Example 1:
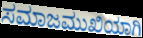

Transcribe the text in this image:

ಸಮಾಜಮುಖಿಯಾಗಿ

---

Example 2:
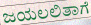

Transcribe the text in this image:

ಜಯಲಲಿತಾಗೆ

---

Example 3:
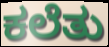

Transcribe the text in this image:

ಕಲೆತು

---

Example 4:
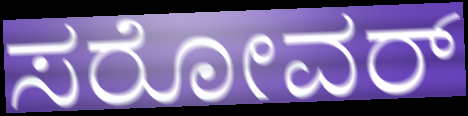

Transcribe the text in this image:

ಸರೋವರ್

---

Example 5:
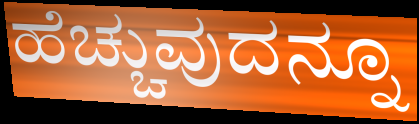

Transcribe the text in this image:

ಹೆಚ್ಚುವುದನ್ನೂ